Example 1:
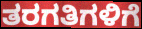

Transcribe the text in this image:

ತರಗತಿಗಳಿಗೆ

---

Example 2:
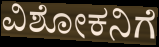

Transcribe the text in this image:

ವಿಶೋಕನಿಗೆ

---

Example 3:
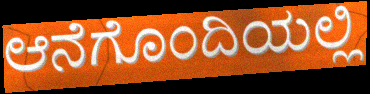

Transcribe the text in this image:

ಆನೆಗೊಂದಿಯಲ್ಲಿ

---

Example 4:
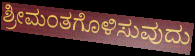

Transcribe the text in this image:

ಶ್ರೀಮಂತಗೊಳಿಸುವುದು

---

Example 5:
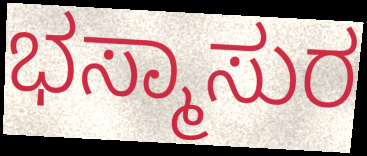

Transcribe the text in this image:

ಭಸ್ಮಾಸುರ